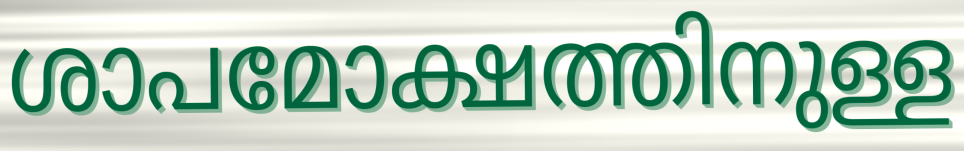
ശാപമോക്ഷത്തിനുള്ള